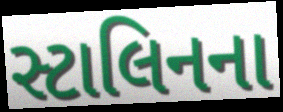
સ્ટાલિનના